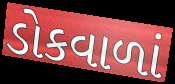
ડોકવાળાં